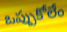
ఒప్పుకోలేం